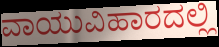
ವಾಯುವಿಹಾರದಲ್ಲಿ